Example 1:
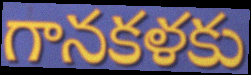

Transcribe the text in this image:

గానకళకు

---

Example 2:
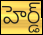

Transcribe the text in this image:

హెర్డ్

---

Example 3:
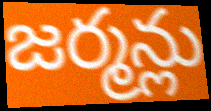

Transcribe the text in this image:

జర్మన్లు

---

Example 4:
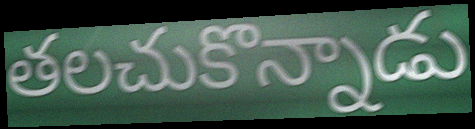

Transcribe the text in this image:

తలచుకొన్నాడు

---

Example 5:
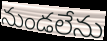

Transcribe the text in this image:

నుండలేను